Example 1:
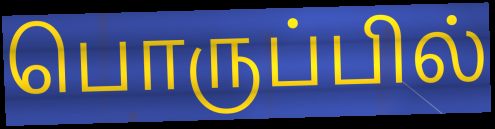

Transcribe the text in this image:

பொருப்பில்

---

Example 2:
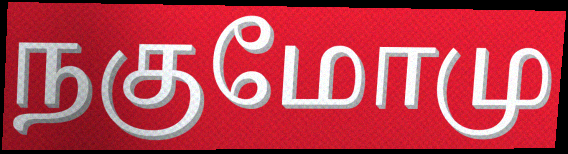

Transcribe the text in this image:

நகுமோமு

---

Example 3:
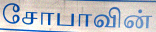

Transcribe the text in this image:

சோபாவின்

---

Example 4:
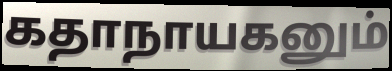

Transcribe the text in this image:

கதாநாயகனும்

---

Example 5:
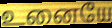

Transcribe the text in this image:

உனையே